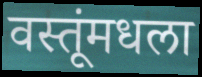
वस्तूंमधला